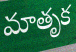
మాతృక